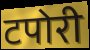
टपोरी